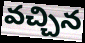
వచ్చిన